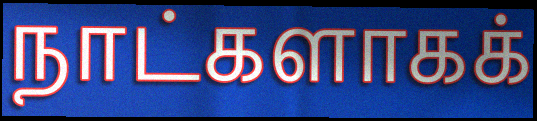
நாட்களாகக்